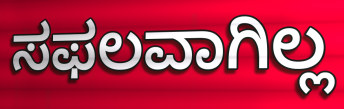
ಸಫಲವಾಗಿಲ್ಲ